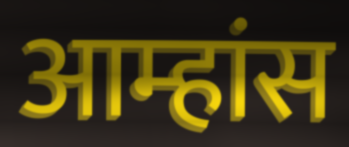
आम्हांस